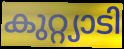
കുറ്റ്യാടി